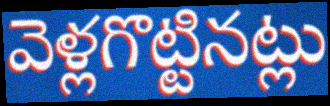
వెళ్లగొట్టినట్లు